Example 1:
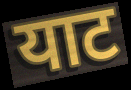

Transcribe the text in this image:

याट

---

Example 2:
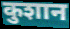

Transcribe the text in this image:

कुशान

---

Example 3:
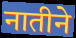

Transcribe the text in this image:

नातीने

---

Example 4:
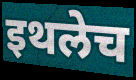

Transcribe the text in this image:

इथलेच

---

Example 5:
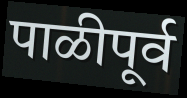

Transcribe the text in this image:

पाळीपूर्व